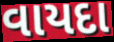
વાયદા